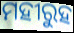
ମହୀରୁହ